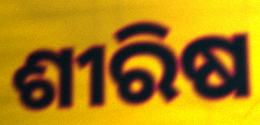
ଶୀରିଷ